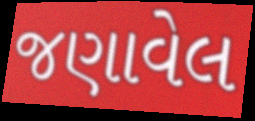
જણાવેલ